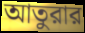
আতুরার